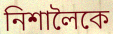
নিশালৈকে